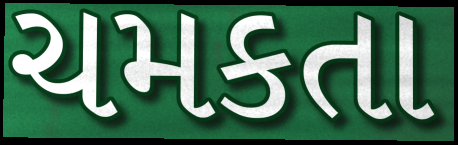
ચમકતા